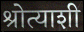
श्रोत्याशी